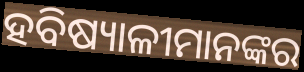
ହବିଷ୍ୟାଳୀମାନଙ୍କର